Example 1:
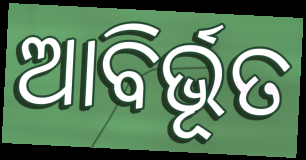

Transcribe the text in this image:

ଆବିର୍ଭୂତ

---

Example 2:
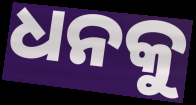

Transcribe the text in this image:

ଧନକୁ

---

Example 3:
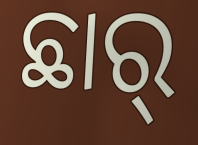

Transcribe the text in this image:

ଛାର୍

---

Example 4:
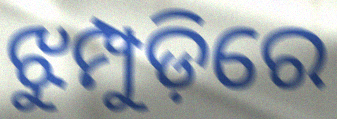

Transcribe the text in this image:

ଝୁମ୍ପୁଡ଼ିରେ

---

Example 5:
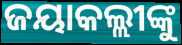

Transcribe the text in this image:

ଜୟାକଲ୍ଲୀଙ୍କୁ